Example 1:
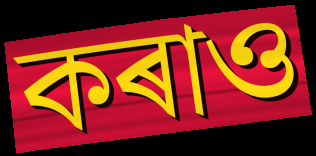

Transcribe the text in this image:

কৰাও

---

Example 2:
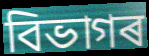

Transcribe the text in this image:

বিভাগৰ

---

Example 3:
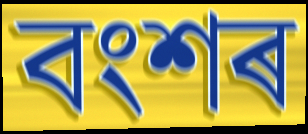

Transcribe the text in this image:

বংশৰ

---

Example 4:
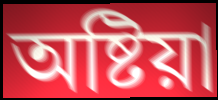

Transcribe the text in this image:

অষ্টিয়া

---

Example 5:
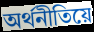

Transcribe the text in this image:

অৰ্থনীতিয়ে